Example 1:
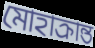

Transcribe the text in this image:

মোহাক্রান্ত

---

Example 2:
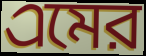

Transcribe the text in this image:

এমের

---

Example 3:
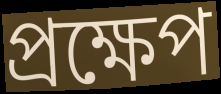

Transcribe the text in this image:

প্রক্ষেপ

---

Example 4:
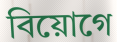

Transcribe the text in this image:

বিয়োগে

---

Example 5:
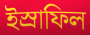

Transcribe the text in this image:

ইস্রাফিল